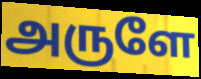
அருளே